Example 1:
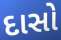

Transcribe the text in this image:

દાસો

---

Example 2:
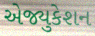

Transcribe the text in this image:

એજ્યુકેશન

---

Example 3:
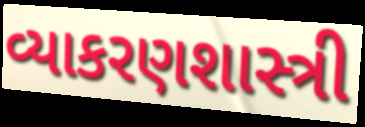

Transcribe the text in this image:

વ્યાકરણશાસ્ત્રી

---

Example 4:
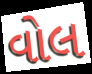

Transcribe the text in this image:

વોલ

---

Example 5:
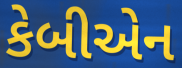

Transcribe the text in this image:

કેબીએન